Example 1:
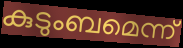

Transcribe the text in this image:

കുടുംബമെന്ന്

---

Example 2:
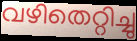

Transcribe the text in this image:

വഴിതെറ്റിച്ചു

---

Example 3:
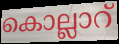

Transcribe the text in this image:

കൊല്ലാറ്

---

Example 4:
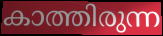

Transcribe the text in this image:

കാത്തിരുന്ന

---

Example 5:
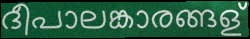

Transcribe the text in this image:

ദീപാലങ്കാരങ്ങള്